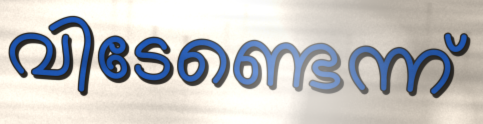
വിടേണ്ടെന്ന്